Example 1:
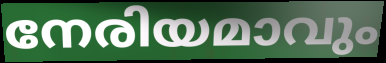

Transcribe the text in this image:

നേരിയമാവും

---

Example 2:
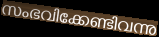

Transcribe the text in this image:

സംഭവിക്കേണ്ടിവന്നു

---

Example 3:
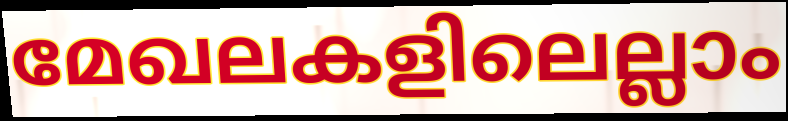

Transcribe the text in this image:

മേഖലകളിലെല്ലാം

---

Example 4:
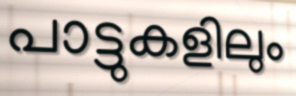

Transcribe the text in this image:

പാട്ടുകളിലും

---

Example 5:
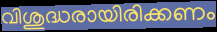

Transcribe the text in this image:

വിശുദ്ധരായിരിക്കണം